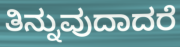
ತಿನ್ನುವುದಾದರೆ